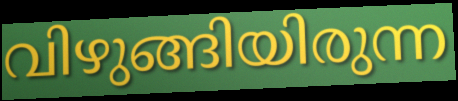
വിഴുങ്ങിയിരുന്ന